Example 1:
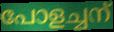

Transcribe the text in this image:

പോളച്ചന്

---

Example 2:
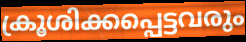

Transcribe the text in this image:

ക്രൂശിക്കപ്പെട്ടവരും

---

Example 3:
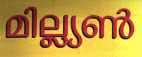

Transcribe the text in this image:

മില്ല്യൺ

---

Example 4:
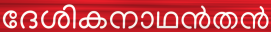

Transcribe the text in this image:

ദേശികനാഥൻതൻ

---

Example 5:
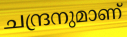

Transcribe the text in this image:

ചന്ദ്രനുമാണ്